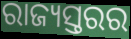
ରାଜ୍ୟସ୍ତରର